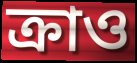
ক্রাও